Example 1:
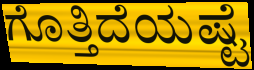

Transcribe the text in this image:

ಗೊತ್ತಿದೆಯಷ್ಟೆ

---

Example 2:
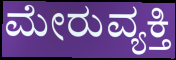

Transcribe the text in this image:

ಮೇರುವ್ಯಕ್ತಿ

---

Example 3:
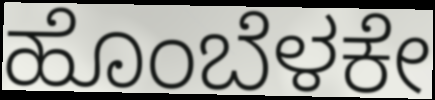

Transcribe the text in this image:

ಹೊಂಬೆಳಕೇ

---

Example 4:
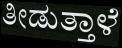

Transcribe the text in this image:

ತೀಡುತ್ತಾಳೆ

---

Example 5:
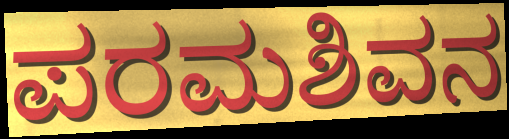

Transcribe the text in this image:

ಪರಮಶಿವನ